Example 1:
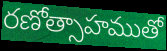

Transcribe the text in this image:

రణోత్సాహముతో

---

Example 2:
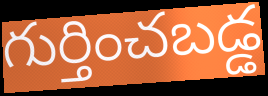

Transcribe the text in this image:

గుర్తించబడ్డ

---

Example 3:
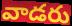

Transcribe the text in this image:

వాడరు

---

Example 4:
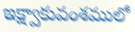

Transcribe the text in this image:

ఇక్ష్వాకువంశములో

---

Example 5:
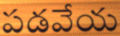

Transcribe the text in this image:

పడవేయ